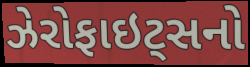
ઝેરોફાઇટ્સનો